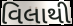
વિલાથી